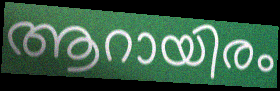
ആറായിരം